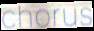
chorus